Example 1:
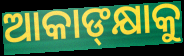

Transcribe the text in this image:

ଆକାଙ୍‍କ୍ଷାକୁ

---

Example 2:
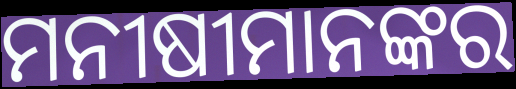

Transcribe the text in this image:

ମନୀଷୀମାନଙ୍କର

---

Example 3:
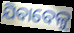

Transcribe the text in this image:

ଯିବାବେଳୁ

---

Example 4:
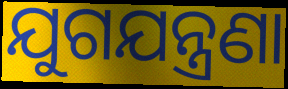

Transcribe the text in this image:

ଯୁଗଯନ୍ତ୍ରଣା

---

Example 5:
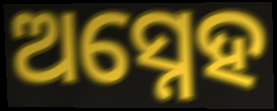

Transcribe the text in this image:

ଅସ୍ନେହ